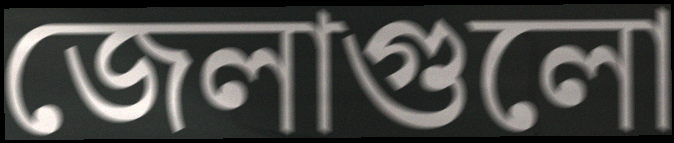
জেলাগুলো